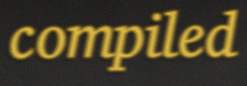
compiled